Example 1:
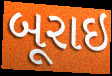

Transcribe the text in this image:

બૂરાઇ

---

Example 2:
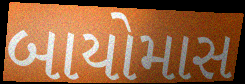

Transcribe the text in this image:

બાયોમાસ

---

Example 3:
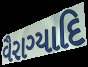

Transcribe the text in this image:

વૈરાગ્યાદિ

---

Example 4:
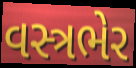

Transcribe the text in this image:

વસ્ત્રભેર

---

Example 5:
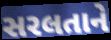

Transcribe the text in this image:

સરલતાને